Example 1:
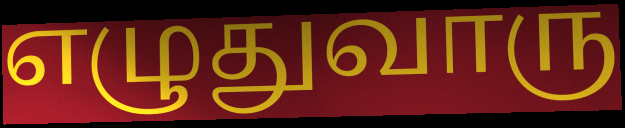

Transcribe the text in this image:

எழுதுவாரு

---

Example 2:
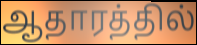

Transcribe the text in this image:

ஆதாரத்தில்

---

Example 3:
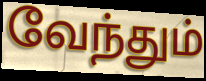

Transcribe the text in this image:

வேந்தும்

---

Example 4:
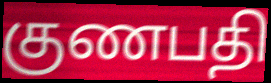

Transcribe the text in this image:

குணபதி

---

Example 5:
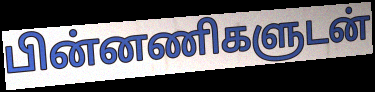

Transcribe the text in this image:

பின்னணிகளுடன்